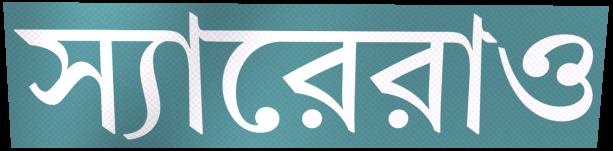
স্যারেরাও